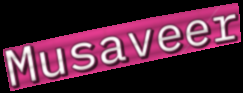
Musaveer